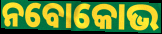
ନବୋକୋଭ